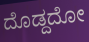
ದೊಡ್ದದೋ